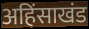
अहिंसाखंड